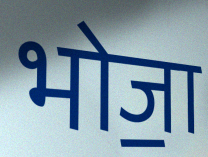
भो॒जा